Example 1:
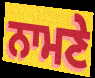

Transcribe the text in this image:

ਨਾਮਣੇ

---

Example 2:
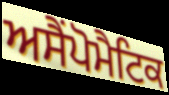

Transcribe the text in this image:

ਅਸੈਂਪੋਮੈਟਿਕ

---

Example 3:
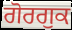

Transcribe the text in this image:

ਗੋਰਗੁਕ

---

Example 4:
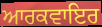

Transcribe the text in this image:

ਆਰਕਵਾਇਰ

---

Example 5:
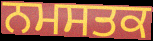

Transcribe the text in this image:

ਨਮਸਤਕ